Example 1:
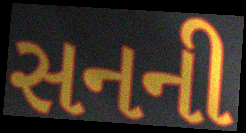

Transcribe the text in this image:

સનની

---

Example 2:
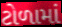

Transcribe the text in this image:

ટોળામાં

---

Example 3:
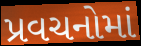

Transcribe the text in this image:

પ્રવચનોમાં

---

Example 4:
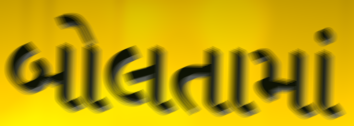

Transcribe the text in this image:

બોલતામાં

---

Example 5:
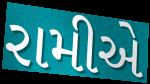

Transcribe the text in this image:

રામીએ